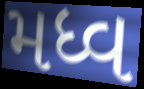
મધ્વ